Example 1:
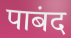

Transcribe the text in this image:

पाबंद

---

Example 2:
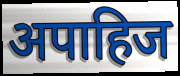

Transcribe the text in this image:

अपाहिज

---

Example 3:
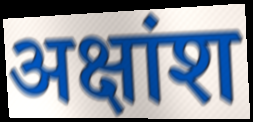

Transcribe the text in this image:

अक्षांश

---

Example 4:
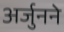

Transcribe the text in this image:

अर्जुनने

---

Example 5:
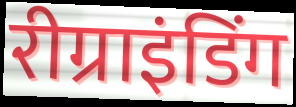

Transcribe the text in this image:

रीग्राइंडिंग